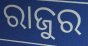
ରାଜୁର